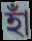
হাঁ